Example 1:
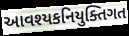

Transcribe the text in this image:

આવશ્યકનિયુક્તિગત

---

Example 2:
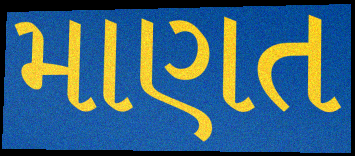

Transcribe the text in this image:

માણત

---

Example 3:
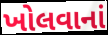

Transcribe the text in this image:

ખોલવાનાં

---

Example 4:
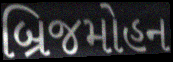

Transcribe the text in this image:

બ્રિજમોહન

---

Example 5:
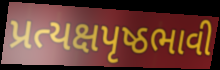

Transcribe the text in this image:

પ્રત્યક્ષપૃષ્ઠભાવી